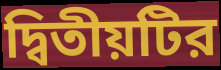
দ্বিতীয়টির